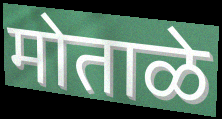
मोताळे